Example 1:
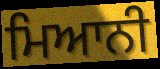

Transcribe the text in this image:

ਮਿਆਨੀ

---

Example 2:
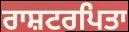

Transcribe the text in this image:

ਰਾਸ਼ਟਰਪਿਤਾ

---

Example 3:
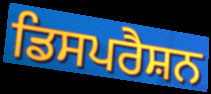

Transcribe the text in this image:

ਡਿਸਪਰੈਸ਼ਨ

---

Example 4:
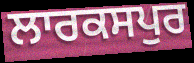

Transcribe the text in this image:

ਲਾਰਕਸਪੁਰ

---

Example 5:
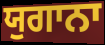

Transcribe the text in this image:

ਯੁਗਾਨਾ